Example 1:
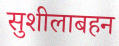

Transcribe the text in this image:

सुशीलाबहन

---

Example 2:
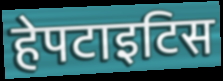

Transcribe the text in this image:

हेपटाइटिस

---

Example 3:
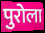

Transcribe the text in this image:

पुरोला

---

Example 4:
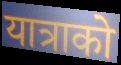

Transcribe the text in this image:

यात्राको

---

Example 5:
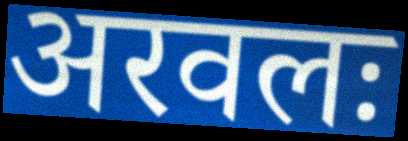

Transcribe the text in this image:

अरवलः